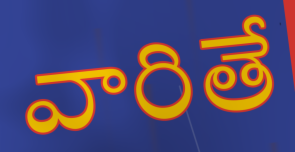
వారితే